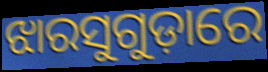
ଝାରସୁଗୁଡ଼ାରେ